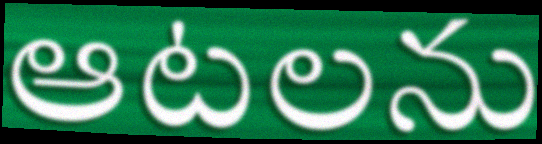
ఆటలను